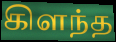
கிளந்த